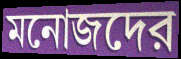
মনোজদের